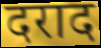
दराद